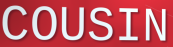
COUSIN